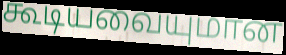
கூடியவையுமான